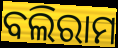
ବଲିରାମ